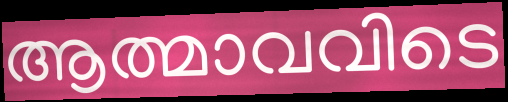
ആത്മാവവിടെ